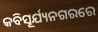
କବିସୂର୍ଯ୍ୟନଗରରେ